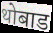
थोबाड